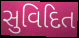
સુવિદિત